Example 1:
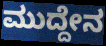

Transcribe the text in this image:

ಮುದ್ದೇನ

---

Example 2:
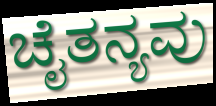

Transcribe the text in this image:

ಚೈತನ್ಯವು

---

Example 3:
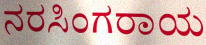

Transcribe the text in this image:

ನರಸಿಂಗರಾಯ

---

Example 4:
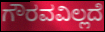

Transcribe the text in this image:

ಗೌರವವಿಲ್ಲದೆ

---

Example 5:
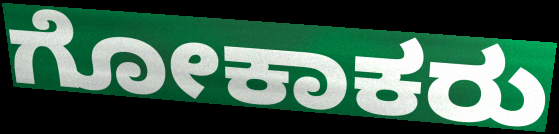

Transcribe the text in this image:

ಗೋಕಾಕರು